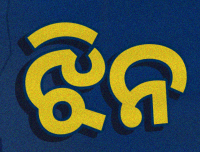
ଝିନ